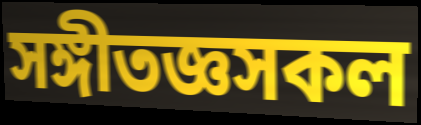
সঙ্গীতজ্ঞসকল